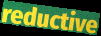
reductive